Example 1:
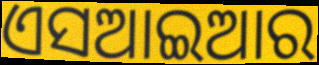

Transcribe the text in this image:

ଏସଆଇଆର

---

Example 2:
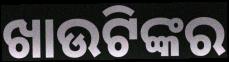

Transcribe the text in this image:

ଖାଉଟିଙ୍କର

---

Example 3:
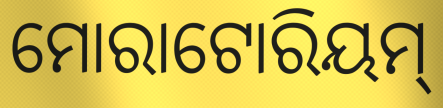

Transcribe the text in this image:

ମୋରାଟୋରିୟମ୍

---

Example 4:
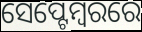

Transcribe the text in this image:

ସେପ୍ଟେମ୍ୱରରେ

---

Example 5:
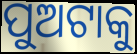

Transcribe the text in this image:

ପୁଅଟାକୁ